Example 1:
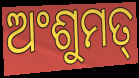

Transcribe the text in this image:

ଅଂଶୁମତ୍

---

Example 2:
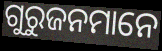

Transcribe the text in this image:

ଗୁରୁଜନମାନେ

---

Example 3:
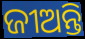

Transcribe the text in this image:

ଜୀଅନ୍ତି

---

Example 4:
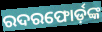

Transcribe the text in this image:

ରଦରଫୋର୍ଡ଼ଙ୍କ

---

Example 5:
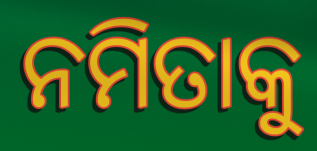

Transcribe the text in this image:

ନମିତାକୁ